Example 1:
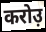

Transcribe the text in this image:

करोउ़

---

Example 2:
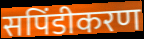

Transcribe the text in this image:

सपिंडीकरण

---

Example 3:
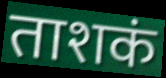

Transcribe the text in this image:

ताशकं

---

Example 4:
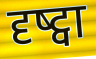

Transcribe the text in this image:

दृष्ट्वा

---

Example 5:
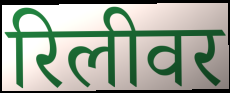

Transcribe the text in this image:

रिलीवर